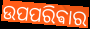
ଉପପରିଵାର